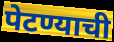
पेटण्याची